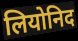
लियोनिद